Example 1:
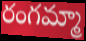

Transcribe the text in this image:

రంగమ్మా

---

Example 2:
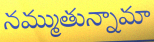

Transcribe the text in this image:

నమ్ముతున్నామా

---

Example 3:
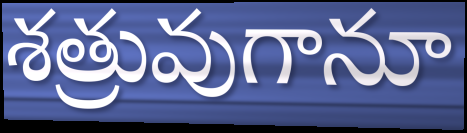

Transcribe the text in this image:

శత్రువుగానూ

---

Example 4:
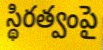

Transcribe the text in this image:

స్థిరత్వంపై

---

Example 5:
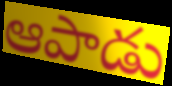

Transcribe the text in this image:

ఆపాడు